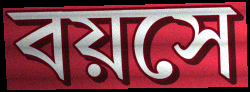
বয়সে